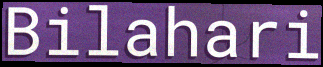
Bilahari